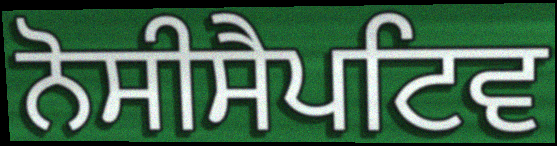
ਨੋਸੀਸੈਪਟਿਵ